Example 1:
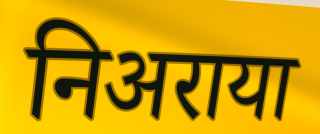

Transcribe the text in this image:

निअराया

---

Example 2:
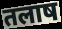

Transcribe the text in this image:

तलाष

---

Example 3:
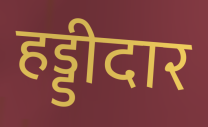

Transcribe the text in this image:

हड्डीदार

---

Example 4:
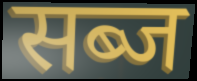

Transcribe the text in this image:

सब्ज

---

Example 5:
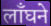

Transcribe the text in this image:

लाँघने